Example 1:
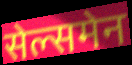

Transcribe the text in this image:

सेल्समेन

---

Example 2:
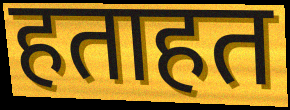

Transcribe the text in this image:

हताहत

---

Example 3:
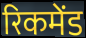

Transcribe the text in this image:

रिकमेंड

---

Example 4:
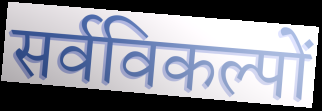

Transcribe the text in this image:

सर्वविकल्पों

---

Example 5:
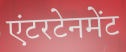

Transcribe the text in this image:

एंटरटेनमेंट